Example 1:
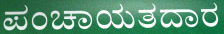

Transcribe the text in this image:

ಪಂಚಾಯತದಾರ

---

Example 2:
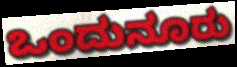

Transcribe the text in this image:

ಒಂದುನೂರು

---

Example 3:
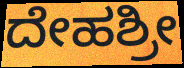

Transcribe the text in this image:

ದೇಹಶ್ರೀ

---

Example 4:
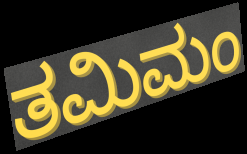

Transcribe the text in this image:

ತಮಿಮಂ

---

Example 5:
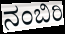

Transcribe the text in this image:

ನಂಬಿರಿ